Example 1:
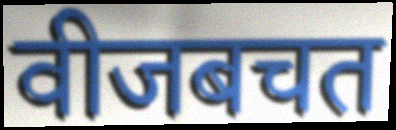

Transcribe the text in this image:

वीजबचत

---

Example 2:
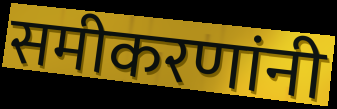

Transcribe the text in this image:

समीकरणांनी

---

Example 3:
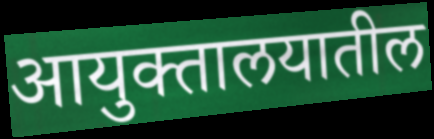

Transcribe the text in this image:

आयुक्तालयातील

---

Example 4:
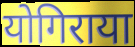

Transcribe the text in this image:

योगिराया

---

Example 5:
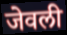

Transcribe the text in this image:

जेवली